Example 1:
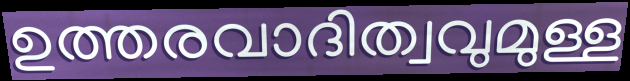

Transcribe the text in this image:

ഉത്തരവാദിത്വവുമുള്ള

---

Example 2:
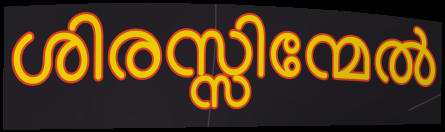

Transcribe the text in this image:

ശിരസ്സിന്മേൽ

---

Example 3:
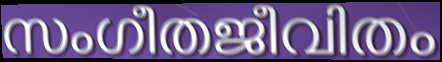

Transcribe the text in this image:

സംഗീതജീവിതം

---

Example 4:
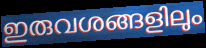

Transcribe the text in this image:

ഇരുവശങ്ങളിലും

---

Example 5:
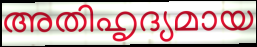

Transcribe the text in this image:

അതിഹൃദ്യമായ